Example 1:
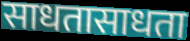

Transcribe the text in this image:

साधतासाधता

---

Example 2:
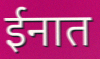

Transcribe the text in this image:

ईनात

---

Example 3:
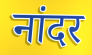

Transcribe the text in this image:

नांदर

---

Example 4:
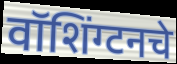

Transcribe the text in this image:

वॉशिंग्टनचे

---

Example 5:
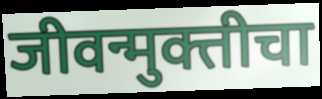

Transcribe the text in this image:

जीवन्मुक्तीचा